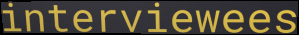
interviewees